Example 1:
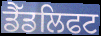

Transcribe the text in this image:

ਡੈੱਡਲਿਫਟ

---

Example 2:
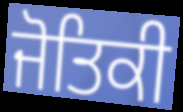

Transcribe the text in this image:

ਜੋਤਿਕੀ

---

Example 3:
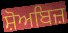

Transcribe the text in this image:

ਸ਼ੋਅਬਿਜ਼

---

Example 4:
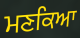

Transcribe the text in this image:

ਮਣਕਿਆ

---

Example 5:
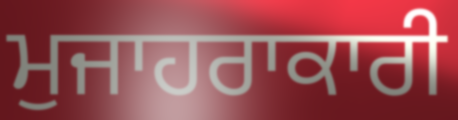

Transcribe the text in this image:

ਮੁਜਾਹਰਾਕਾਰੀ